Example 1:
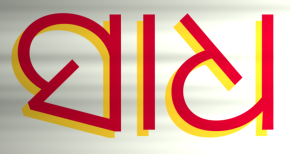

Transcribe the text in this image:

ସାଧ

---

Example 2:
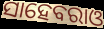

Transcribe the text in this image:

ସାହେବରାଓ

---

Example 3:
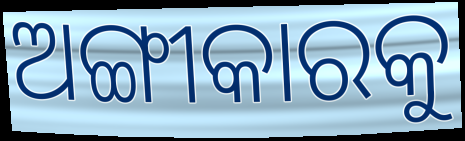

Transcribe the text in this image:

ଅଙ୍ଗୀକାରକୁ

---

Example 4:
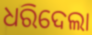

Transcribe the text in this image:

ଧରିଦେଲା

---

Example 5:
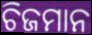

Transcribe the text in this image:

ଚିଜମାନ